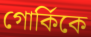
গোর্কিকে